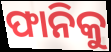
ଫାନିକୁ